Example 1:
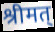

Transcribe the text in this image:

श्रीमत्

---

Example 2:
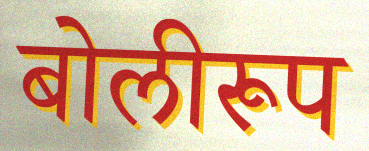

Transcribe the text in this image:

बोलीरूप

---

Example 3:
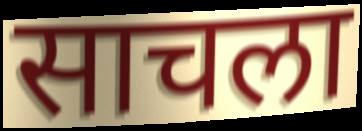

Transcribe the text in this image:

साचला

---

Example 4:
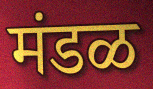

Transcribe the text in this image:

मंडळ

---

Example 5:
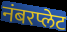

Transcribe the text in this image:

नंबरप्लेट